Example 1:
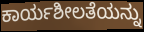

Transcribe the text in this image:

ಕಾರ್ಯಶೀಲತೆಯನ್ನು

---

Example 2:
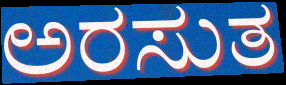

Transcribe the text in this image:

ಅರಸುತ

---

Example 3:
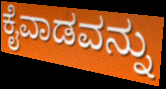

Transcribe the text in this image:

ಕೈವಾಡವನ್ನು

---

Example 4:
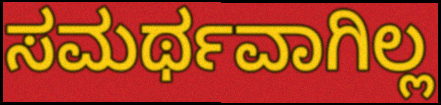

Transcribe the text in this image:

ಸಮರ್ಥವಾಗಿಲ್ಲ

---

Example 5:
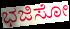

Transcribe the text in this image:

ಭಜಿಸೋ